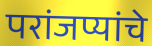
परांजप्यांचे